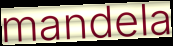
mandela